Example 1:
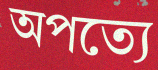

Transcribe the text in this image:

অপত্যে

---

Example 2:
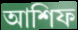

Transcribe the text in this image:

আশিফ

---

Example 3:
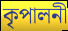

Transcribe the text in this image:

কৃপালনী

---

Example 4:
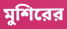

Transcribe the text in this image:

মুশিরের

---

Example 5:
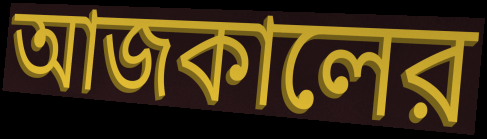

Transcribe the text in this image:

আজকালের